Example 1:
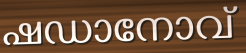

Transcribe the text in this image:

ഷഡാനോവ്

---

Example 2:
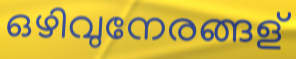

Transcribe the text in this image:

ഒഴിവുനേരങ്ങള്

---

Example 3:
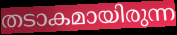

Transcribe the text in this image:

തടാകമായിരുന്ന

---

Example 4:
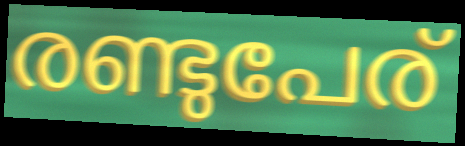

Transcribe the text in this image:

രണ്ടുപേര്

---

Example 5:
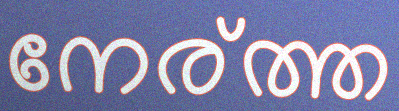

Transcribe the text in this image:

നേര്ത്ത